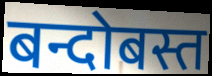
बन्दोबस्त